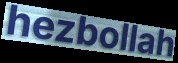
hezbollah